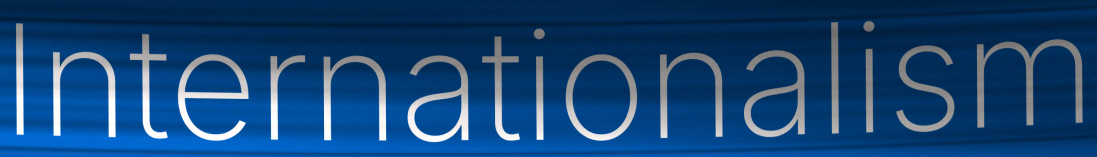
Internationalism